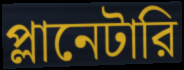
প্লানেটারি